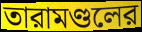
তারামণ্ডলের